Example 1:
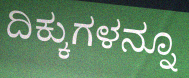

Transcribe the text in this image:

ದಿಕ್ಕುಗಳನ್ನೂ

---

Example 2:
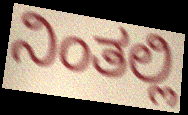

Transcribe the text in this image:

ನಿಂತಲ್ಲಿ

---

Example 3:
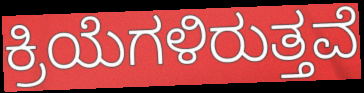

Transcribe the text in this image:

ಕ್ರಿಯೆಗಳಿರುತ್ತವೆ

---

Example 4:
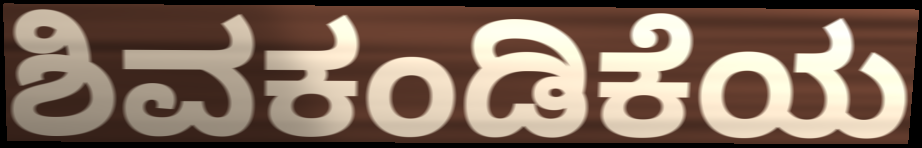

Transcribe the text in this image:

ಶಿವಕಂಡಿಕೆಯ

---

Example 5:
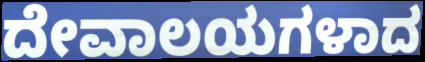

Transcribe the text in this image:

ದೇವಾಲಯಗಳಾದ